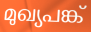
മുഖ്യപങ്ക്